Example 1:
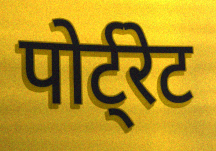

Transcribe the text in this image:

पोर्ट्रेट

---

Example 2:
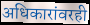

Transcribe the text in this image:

अधिकारांवरही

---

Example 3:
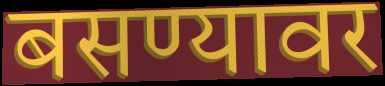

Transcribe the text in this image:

बसण्यावर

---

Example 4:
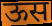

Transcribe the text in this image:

ऊस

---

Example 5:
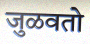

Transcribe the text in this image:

जुळवतो